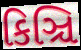
કિઞ્ચિ